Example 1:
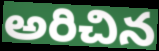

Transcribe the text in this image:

అరిచిన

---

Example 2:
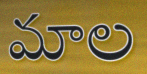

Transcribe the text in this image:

మాల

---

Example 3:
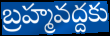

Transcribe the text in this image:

బ్రహ్మవద్దకు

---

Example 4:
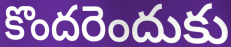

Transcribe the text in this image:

కొందరెందుకు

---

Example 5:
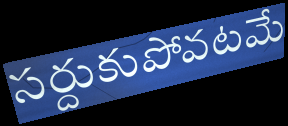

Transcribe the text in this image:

సర్దుకుపోవటమే